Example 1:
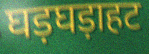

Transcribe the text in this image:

घड़घड़ाहट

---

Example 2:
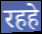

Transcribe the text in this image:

रहहे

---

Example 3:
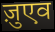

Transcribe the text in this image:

ज़ुएव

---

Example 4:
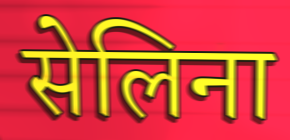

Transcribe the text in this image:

सेलिना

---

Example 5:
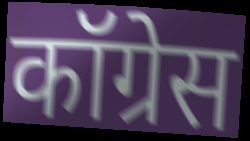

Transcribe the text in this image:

कॉग्रेस